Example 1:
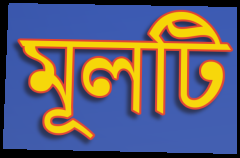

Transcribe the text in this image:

মূলটি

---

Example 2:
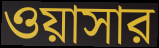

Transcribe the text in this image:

ওয়াসার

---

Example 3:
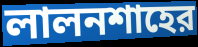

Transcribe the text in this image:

লালনশাহের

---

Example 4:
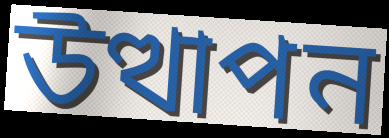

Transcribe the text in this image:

উত্থাপন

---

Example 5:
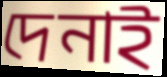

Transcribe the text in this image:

দেনাই